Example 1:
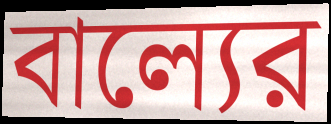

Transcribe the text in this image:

বাল্যের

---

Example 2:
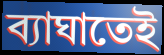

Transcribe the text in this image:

ব্যাঘাতেই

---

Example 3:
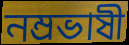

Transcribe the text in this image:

নম্রভাষী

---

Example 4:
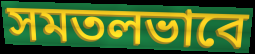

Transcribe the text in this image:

সমতলভাবে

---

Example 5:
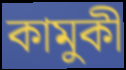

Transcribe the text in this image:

কামুকী